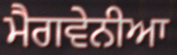
ਮੈਗਵੇਨੀਆ